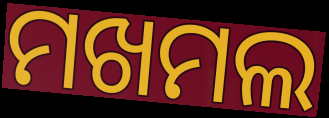
ମଖମଲ